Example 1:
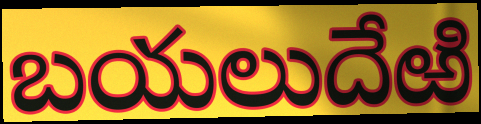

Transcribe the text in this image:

బయలుదేఱి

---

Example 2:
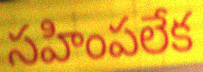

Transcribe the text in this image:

సహింపలేక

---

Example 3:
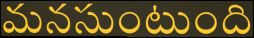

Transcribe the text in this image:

మనసుంటుంది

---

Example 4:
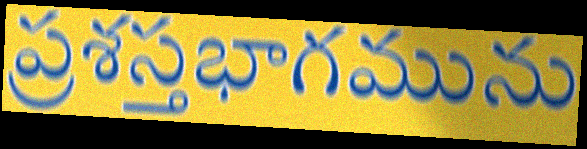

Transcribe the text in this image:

ప్రశస్తభాగమును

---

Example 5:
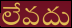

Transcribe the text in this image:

లేవదు